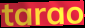
tarao